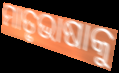
ମାତୃଭାଷାକୁ